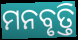
ମନବୃତ୍ତି